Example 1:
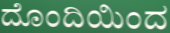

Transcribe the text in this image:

ದೊಂದಿಯಿಂದ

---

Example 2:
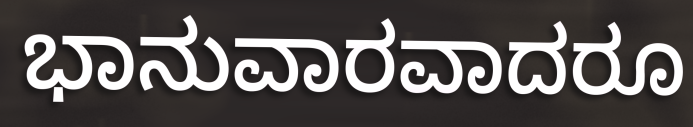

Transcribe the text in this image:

ಭಾನುವಾರವಾದರೂ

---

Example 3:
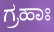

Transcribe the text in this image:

ಗ್ರಹಾಃ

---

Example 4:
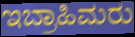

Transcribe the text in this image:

ಇಬ್ರಾಹಿಮರು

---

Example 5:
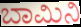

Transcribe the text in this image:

ಬಾಮಿನಿ